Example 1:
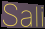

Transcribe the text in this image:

Sali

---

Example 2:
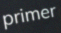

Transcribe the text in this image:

primer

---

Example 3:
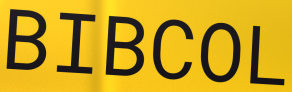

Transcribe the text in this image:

BIBCOL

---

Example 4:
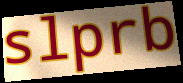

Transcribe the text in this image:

slprb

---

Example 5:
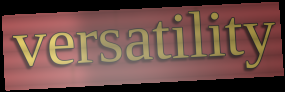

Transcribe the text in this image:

versatility